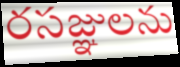
రసజ్ఞులను